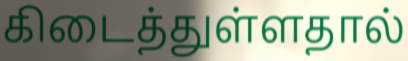
கிடைத்துள்ளதால்